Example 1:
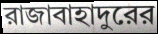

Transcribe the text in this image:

রাজাবাহাদুরের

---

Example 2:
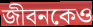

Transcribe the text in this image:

জীবনকেও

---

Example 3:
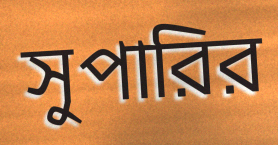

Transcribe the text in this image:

সুপারির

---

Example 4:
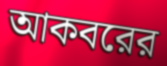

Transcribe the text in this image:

আকবরের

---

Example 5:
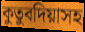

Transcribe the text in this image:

কুতুবদিয়াসহ